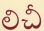
లిచీ